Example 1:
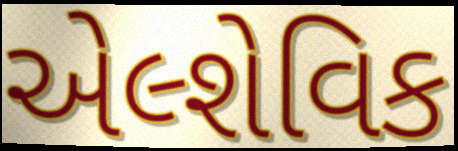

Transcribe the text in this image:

એલ્શેવિક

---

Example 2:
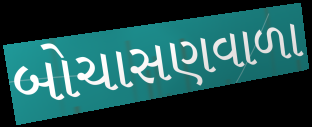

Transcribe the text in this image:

બોચાસણવાળા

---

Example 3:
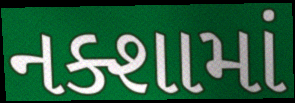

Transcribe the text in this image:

નક્શામાં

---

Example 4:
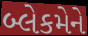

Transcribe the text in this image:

બ્લેકમેને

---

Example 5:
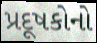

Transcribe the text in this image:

પ્રદૂષકોનો